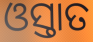
ଓସ୍ତାତ